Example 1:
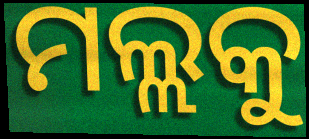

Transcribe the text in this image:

ମଲ୍ଲକୁ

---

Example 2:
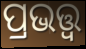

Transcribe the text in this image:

ପ୍ରଭତ୍ତ୍ଵ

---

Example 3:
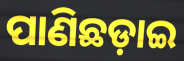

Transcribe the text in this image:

ପାଣିଛଡ଼ାଇ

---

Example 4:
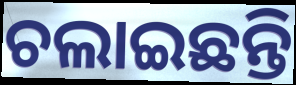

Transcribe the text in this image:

ଚଲାଇଛନ୍ତି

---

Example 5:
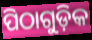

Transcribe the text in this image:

ପିଠାଗୁଡ଼ିକ